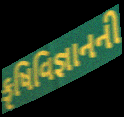
કૃષિવિજ્ઞાનની